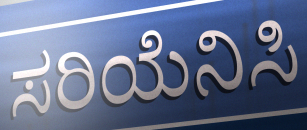
ಸರಿಯೆನಿಸಿ